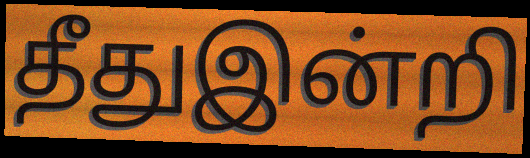
தீதுஇன்றி